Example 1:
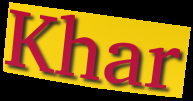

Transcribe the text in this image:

Khar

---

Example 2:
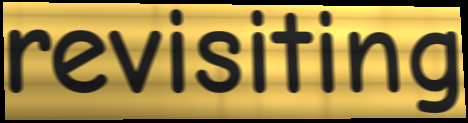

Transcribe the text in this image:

revisiting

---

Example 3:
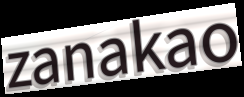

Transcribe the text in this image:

zanakao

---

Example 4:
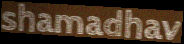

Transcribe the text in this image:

shamadhav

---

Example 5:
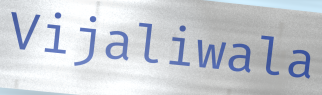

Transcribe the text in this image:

Vijaliwala